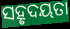
ସହୃଦୟତା